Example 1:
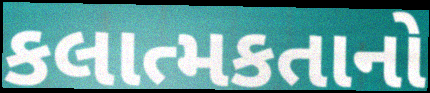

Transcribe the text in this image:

કલાત્મકતાનો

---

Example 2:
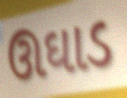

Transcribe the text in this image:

ઊઘાડ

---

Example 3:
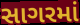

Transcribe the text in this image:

સાગરમાં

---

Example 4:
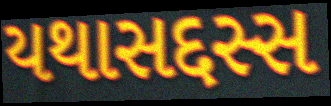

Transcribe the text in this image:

યથાસદ્દસ્સ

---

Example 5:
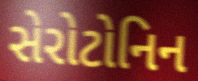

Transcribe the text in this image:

સેરોટોનિન